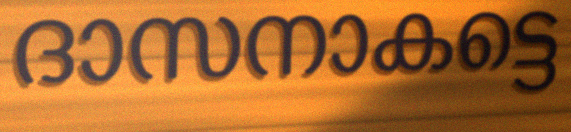
ദാസനാകട്ടെ